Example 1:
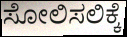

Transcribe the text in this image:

ಸೋಲಿಸಲಿಕ್ಕೆ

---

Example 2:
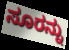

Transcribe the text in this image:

ಸೂರನ್ನು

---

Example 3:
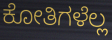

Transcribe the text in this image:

ಕೋತಿಗಳೆಲ್ಲ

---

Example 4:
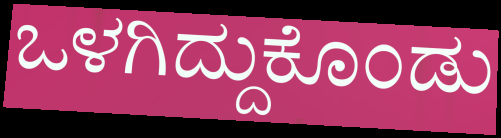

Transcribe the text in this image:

ಒಳಗಿದ್ದುಕೊಂಡು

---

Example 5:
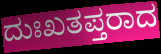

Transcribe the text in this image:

ದುಃಖತಪ್ತರಾದ